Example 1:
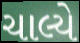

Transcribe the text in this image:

ચાલ્યે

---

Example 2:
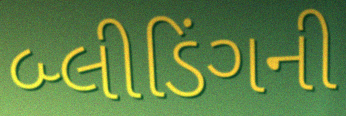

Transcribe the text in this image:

બ્લીડિંગની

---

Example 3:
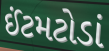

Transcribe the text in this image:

ઈંટમટોડાં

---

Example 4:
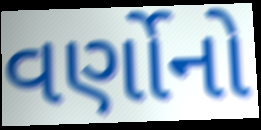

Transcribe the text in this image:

વર્ણોનો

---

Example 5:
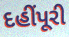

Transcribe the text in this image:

દહીંપૂરી